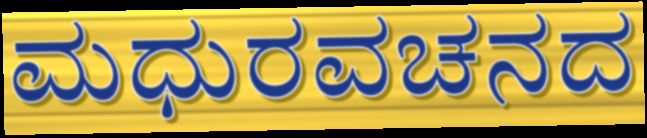
ಮಧುರವಚನದ